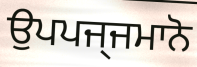
ਉਪਪਜ੍ਜਮਾਨੋ